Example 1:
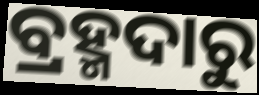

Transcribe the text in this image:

ବ୍ରହ୍ମଦାରୁ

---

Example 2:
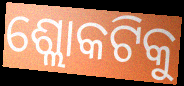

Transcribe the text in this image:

ଶ୍ଲୋକଟିକୁ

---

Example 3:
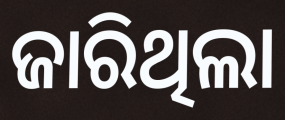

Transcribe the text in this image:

ଜାରିଥିଲା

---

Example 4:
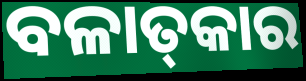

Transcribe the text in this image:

ବଳାତ୍‌କାର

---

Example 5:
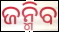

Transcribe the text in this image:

ଜନ୍ମିବ